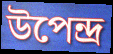
উপেন্দ্ৰ